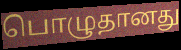
பொழுதானது